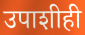
उपाशीही